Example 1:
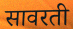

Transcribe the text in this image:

सावरती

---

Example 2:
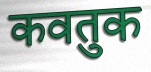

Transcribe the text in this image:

कवतुक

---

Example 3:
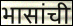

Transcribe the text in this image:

भासांची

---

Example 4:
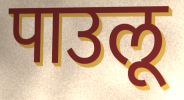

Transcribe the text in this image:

पाउलू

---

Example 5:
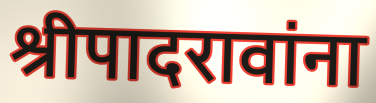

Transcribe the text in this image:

श्रीपादरावांना